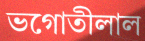
ভগোতীলাল